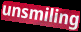
unsmiling